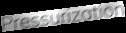
Pressurization